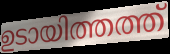
ഉടായിത്തത്ത്